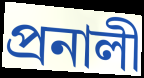
প্রনালী